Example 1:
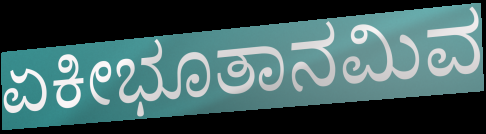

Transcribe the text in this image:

ಏಕೀಭೂತಾನಮಿವ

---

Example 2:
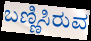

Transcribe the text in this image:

ಬಣ್ಣಿಸಿರುವ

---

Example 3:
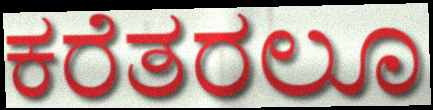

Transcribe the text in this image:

ಕರೆತರಲೂ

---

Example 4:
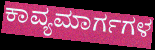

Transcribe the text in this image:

ಕಾವ್ಯಮಾರ್ಗಗಳ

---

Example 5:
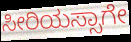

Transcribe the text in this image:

ಸೀರಿಯಸ್ಸಾಗೇ